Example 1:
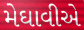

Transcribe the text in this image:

મેઘાવીએ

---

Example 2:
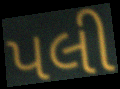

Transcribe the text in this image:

પલી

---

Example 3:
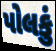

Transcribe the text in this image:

પોલકું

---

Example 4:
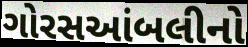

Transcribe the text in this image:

ગોરસઆંબલીનો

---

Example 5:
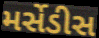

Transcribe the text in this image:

મર્સેડીસ